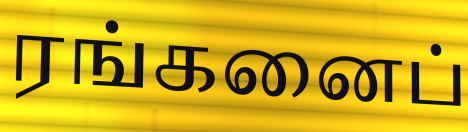
ரங்கனைப்